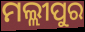
ମଲ୍ଲୀପୁର